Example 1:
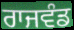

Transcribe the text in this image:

ਰਾਜਵੰਡ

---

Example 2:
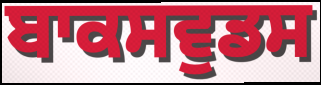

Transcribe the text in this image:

ਬਾਕਸਵੁਡਸ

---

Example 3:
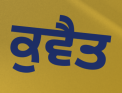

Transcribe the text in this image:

ਕੁਵੈਤ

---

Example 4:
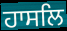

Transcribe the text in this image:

ਹਾਸਲਿ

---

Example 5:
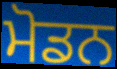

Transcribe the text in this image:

ਮੋਡਨ